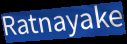
Ratnayake